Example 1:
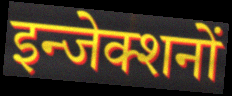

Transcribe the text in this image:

इन्जेक्शनों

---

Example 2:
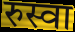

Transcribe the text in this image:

रुस्वा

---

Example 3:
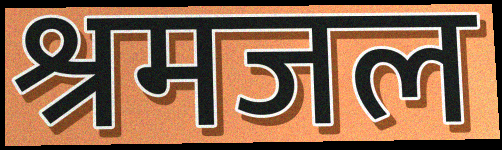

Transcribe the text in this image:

श्रमजल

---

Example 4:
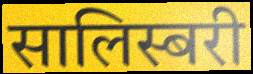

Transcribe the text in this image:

सालिस्बरी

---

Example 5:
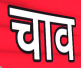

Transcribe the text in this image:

चाव